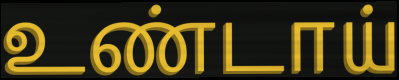
உண்டாய்